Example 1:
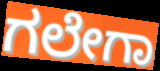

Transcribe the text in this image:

ಗಲೇಗಾ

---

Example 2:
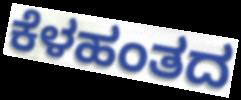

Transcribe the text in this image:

ಕೆಳಹಂತದ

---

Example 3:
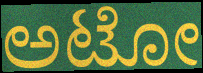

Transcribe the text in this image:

ಅಟೋ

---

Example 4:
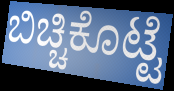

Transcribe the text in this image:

ಬಿಚ್ಚಿಕೊಟ್ಟೆ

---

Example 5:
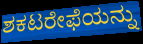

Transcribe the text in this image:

ಶಕಟರೇಫೆಯನ್ನು